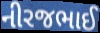
નીરજભાઈ